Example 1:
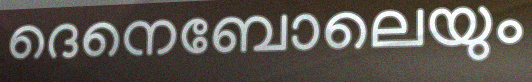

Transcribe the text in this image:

ദെനെബോലെയും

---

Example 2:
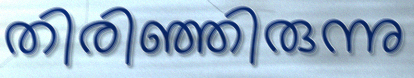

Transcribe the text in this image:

തിരിഞ്ഞിരുന്നു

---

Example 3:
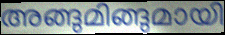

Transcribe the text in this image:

അങ്ങുമിങ്ങുമായി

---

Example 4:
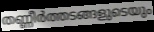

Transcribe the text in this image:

തണ്ണീർത്തടങ്ങളുടെയും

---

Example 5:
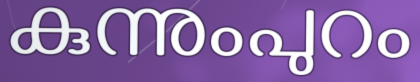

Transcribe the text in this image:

കുന്നുംപുറം